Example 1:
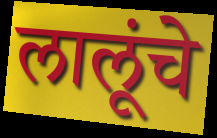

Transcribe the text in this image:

लालूंचे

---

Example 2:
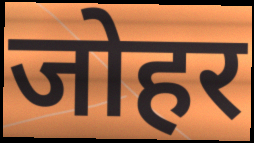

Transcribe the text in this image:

जोहर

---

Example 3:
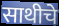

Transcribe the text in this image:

साथीचे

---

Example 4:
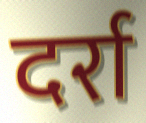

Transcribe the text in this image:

दर्रा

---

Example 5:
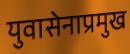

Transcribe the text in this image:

युवासेनाप्रमुख